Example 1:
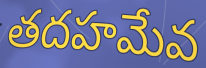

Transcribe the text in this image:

తదహమేవ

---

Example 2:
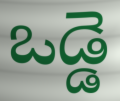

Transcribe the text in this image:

ఒడ్డె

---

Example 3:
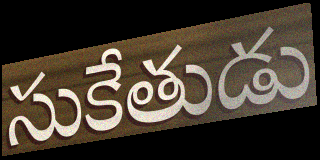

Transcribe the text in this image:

సుకేతుడు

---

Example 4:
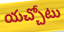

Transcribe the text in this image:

యచ్చోటు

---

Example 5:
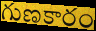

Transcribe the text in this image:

గుణకారం